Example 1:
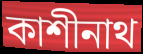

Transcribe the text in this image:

কাশীনাথ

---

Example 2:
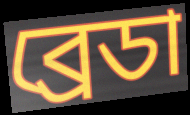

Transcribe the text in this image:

ব্রেডা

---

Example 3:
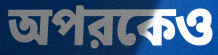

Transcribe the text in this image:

অপরকেও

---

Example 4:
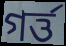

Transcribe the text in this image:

গর্ত্ত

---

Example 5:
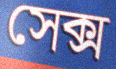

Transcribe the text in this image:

সেক্স